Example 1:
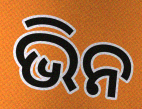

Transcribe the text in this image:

ଭିନ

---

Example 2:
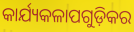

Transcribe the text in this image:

କାର୍ଯ୍ୟକଳାପଗୁଡ଼ିକର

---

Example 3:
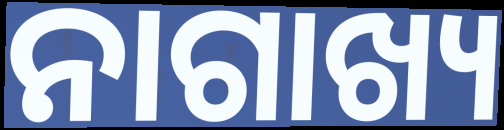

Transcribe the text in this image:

ନାଗାଖ୍ୟ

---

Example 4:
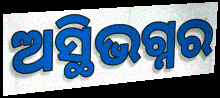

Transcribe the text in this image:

ଅସ୍ଥିଭଗ୍ନର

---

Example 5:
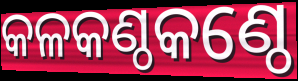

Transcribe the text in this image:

କଳକଣ୍ଠକଣ୍ଠେ